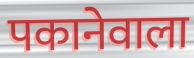
पकानेवाला